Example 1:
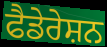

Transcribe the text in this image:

ਫੈਡੇਰੇਸ਼ਨ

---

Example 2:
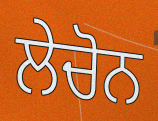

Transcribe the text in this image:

ਲੇਚੋਨ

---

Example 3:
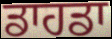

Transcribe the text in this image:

ਡਾਹਡਾ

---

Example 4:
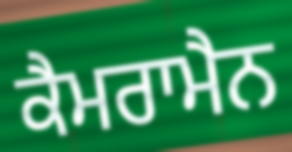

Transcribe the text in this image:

ਕੈਮਰਾਮੈਨ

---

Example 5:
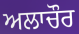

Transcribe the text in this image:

ਅਲਾਚੌਰ